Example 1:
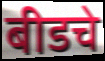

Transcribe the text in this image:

बीडचे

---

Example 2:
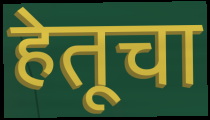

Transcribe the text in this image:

हेतूचा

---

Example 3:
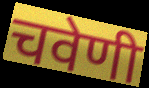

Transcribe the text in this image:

चवेणी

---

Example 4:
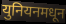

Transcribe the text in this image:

युनियनमधून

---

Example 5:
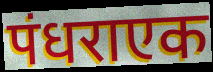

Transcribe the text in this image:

पंधराएक